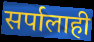
सर्पालाही